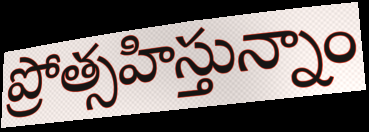
ప్రోత్సహిస్తున్నాం